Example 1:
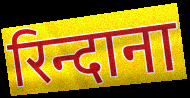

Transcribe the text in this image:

रिन्दाना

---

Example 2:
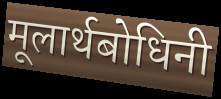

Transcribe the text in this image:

मूलार्थबोधिनी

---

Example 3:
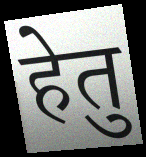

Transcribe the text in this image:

हेतु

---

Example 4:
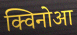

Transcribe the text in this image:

क्विनोआ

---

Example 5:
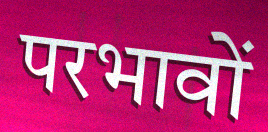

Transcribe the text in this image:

परभावों